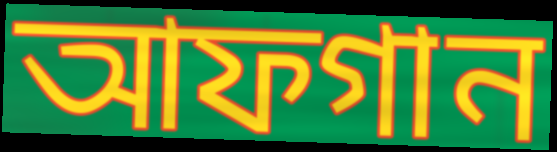
আফগান